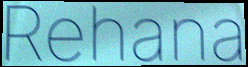
Rehana